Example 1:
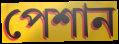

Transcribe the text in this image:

পেশান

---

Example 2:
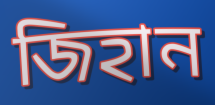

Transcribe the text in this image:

জিহান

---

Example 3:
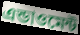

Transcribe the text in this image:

এন্ডাওমেন্ট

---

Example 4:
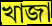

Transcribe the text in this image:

খাজা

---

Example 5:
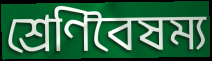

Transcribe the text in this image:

শ্রেণিবৈষম্য